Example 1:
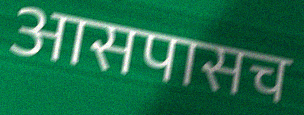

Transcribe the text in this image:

आसपासच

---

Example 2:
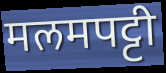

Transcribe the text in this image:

मलमपट्टी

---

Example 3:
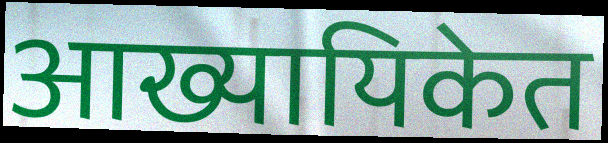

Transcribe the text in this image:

आख्यायिकेत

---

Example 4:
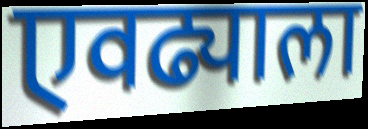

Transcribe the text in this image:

एवढ्याला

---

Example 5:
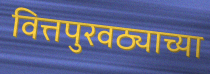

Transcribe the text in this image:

वित्तपुरवठ्याच्या